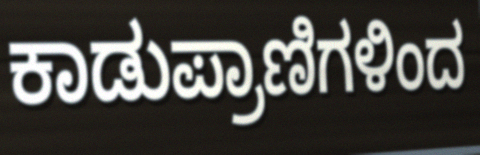
ಕಾಡುಪ್ರಾಣಿಗಳಿಂದ